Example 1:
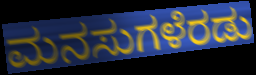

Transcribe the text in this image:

ಮನಸುಗಳೆರಡು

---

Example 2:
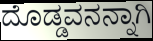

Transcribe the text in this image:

ದೊಡ್ಡವನನ್ನಾಗಿ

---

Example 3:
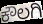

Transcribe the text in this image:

ಕೌಲಗಿ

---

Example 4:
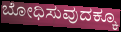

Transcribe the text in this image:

ಬೋಧಿಸುವುದಕ್ಕೂ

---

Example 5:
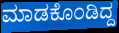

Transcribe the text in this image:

ಮಾಡಕೊಂಡಿದ್ದ